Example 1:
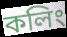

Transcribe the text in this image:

কলিং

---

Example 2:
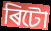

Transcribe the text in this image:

ৰিটো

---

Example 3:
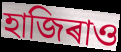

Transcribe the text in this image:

হাজিৰাও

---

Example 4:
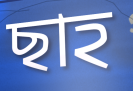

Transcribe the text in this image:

ছাহ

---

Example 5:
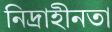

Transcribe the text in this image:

নিদ্ৰাহীনতা